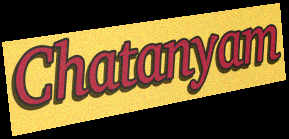
Chatanyam